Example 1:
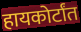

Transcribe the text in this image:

हायकोर्टांत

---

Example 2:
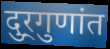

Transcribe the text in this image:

दुर्गुणांत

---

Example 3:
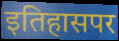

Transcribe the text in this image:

इतिहासपर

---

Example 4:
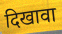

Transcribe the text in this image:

दिखावा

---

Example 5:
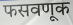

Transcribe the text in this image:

फसवणूक